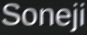
Soneji